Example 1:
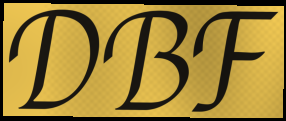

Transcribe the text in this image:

DBF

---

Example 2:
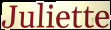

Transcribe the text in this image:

Juliette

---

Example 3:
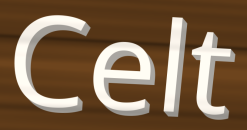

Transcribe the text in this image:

Celt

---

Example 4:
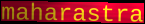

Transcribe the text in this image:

maharastra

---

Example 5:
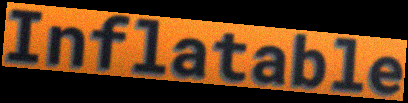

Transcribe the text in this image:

Inflatable